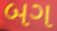
બગ